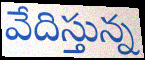
వేదిస్తున్న